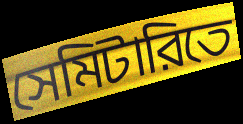
সেমিটারিতে